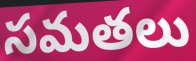
సమతలు